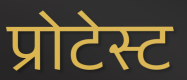
प्रोटेस्ट